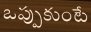
ఒప్పుకుంటే